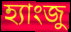
হ্যাংজু